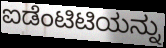
ಐಡೆಂಟಿಟಿಯನ್ನು